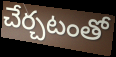
చేర్చటంతో